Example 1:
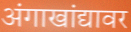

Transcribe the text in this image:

अंगाखांद्यावर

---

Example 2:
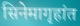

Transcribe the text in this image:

सिनेमागृहांत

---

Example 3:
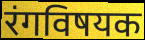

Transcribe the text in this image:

रंगविषयक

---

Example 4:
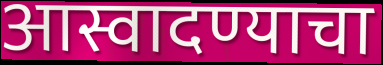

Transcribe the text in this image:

आस्वादण्याचा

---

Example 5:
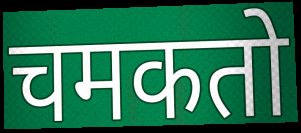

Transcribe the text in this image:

चमकतो